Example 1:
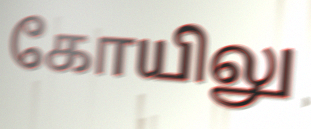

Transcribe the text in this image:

கோயிலு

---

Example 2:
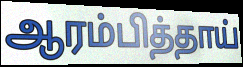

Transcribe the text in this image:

ஆரம்பித்தாய்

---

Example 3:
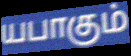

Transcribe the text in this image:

யபாகும்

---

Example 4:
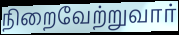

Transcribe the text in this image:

நிறைவேற்றுவார்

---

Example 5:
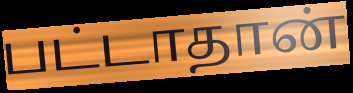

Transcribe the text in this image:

பட்டாதான்